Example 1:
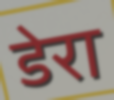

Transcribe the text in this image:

डेरा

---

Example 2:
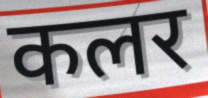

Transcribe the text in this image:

कलर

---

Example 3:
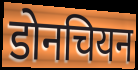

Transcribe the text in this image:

डोनचियन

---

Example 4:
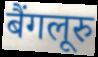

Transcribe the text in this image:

बैंगलूरु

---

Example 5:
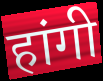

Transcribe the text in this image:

हांगी